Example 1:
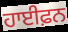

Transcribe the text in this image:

ਹਾਈਫ਼ਨ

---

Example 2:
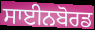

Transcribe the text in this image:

ਸਾਈਨਬੋਰਡ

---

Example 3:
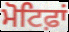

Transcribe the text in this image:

ਮੋਟਿਫ਼ਾਂ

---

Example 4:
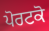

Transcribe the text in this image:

ਪੋਰਟਕੋ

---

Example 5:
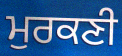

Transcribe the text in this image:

ਮੁਰਕਣੀ